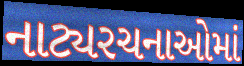
નાટ્યરચનાઓમાં